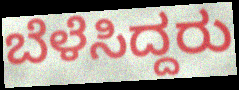
ಬೆಳೆಸಿದ್ದರು